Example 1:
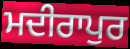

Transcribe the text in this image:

ਮਦੀਰਾਪੁਰ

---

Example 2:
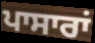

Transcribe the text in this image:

ਪਾਸਾਰਾਂ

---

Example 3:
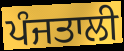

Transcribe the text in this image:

ਪੰਜਤਾਲੀ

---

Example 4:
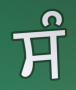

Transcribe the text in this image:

ਸੰ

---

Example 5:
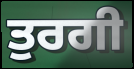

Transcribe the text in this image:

ਤੁਰਗੀ